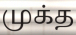
முக்த